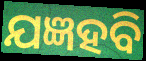
ଯଜ୍ଞହବି